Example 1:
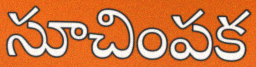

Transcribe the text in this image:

సూచింపక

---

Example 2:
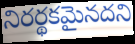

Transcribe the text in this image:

నిరర్థకమైనదని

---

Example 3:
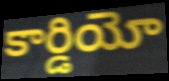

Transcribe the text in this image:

కార్డియో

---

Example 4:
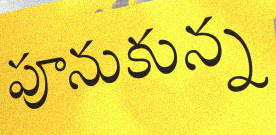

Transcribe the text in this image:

పూనుకున్న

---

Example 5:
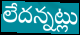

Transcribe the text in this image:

లేదన్నట్లు